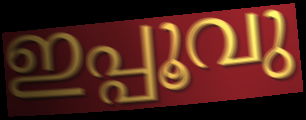
ഇപ്പൂവു